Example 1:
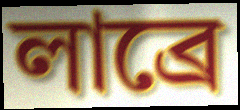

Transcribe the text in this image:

লাব্রে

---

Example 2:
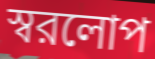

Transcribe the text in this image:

স্বরলোপ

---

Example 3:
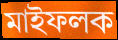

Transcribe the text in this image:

মাইফলক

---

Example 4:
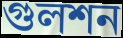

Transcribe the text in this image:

গুলশন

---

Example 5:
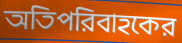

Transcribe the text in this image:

অতিপরিবাহকের